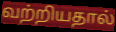
வற்றியதால்